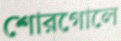
শোরগোলে